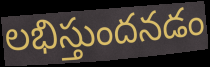
లభిస్తుందనడం